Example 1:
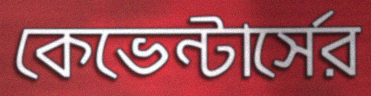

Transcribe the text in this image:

কেভেন্টার্সের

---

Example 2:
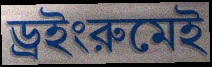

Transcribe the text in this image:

ড্রইংরুমেই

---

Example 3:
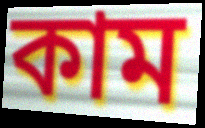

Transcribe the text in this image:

কাম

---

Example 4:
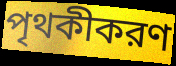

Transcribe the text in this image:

পৃথকীকরণ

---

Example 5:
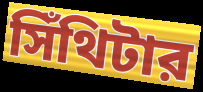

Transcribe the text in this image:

সিঁথিটার